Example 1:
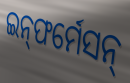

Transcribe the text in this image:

ଇନ୍‍ଫର୍ମେସନ୍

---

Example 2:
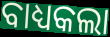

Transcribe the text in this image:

ବାଧ୍ୟକଲା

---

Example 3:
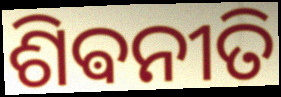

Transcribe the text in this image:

ଶିଵନୀତି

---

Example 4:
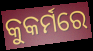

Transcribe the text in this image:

କୁକର୍ମରେ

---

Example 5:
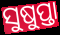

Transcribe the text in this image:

ସୁଷୁପ୍ତା